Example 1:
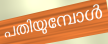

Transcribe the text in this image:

പതിയുമ്പോൾ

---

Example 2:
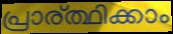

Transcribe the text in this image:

പ്രാര്ത്ഥിക്കാം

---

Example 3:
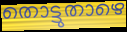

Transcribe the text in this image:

തൊട്ടുതാഴെ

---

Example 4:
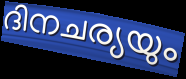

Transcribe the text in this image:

ദിനചര്യയും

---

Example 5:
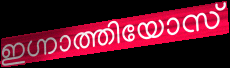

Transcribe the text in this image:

ഇഗ്നാത്തിയോസ്